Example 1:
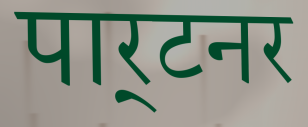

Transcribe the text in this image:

पार्टनर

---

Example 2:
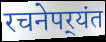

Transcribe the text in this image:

रचनेपर्यंत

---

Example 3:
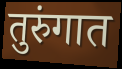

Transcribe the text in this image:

तुरुंगात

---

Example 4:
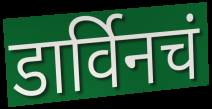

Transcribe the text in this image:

डार्विनचं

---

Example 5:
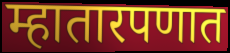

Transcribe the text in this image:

म्हातारपणात